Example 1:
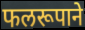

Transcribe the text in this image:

फलरूपाने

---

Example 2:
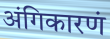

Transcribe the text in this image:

अंगिकारणं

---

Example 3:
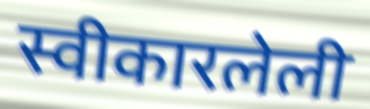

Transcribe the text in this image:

स्वीकारलेली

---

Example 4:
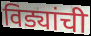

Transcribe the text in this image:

विड्यांची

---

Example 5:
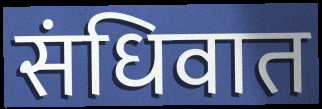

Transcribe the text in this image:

संधिवात